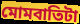
মোমবাতিটা